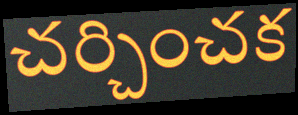
చర్చించక